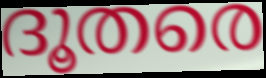
ദൂതരെ